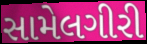
સામેલગીરી